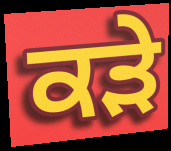
ਕੜੇ